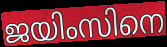
ജയിംസിനെ